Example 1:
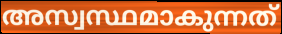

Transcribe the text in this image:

അസ്വസ്ഥമാകുന്നത്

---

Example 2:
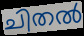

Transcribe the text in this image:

ചിതൽ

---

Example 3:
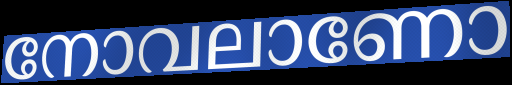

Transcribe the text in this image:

നോവലാണോ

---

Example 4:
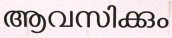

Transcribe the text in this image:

ആവസിക്കും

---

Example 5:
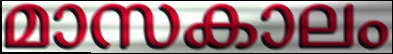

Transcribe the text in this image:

മാസകാലം